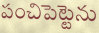
పంచిపెట్టెను